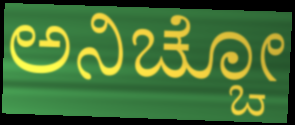
ಅನಿಚ್ಚೋ